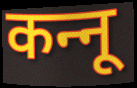
कन्नू